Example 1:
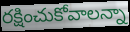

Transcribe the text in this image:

రక్షించుకోవాలన్నా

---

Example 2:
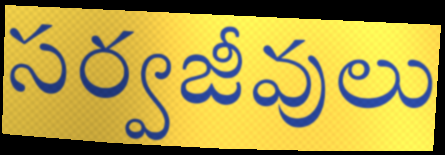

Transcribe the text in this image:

సర్వజీవులు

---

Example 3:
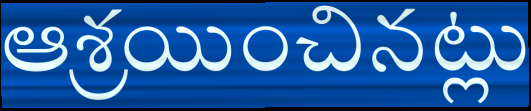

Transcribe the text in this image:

ఆశ్రయించినట్లు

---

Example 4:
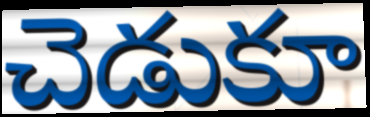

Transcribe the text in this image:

చెడుకూ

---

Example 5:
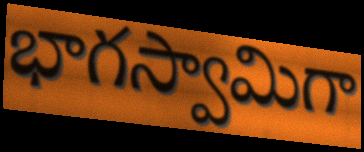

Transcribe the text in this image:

భాగస్వామిగా